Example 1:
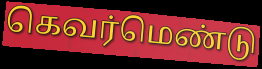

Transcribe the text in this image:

கெவர்மெண்டு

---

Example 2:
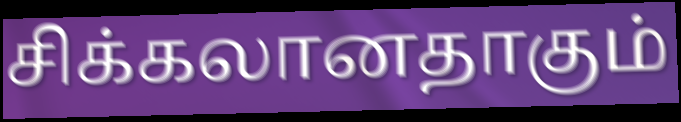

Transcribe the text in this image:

சிக்கலானதாகும்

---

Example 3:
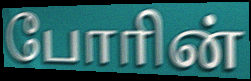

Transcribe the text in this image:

போரின்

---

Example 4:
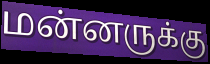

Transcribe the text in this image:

மன்னருக்கு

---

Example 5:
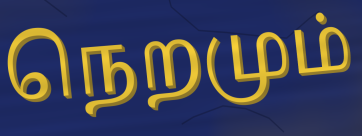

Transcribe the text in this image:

நெறமும்